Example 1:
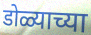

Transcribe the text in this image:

डोळ्याच्या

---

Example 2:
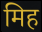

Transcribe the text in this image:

मिह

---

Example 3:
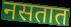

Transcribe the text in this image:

नसतात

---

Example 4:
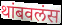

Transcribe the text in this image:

थांबवलंस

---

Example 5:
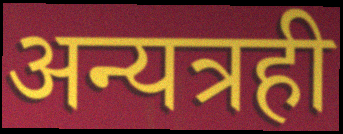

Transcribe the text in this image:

अन्यत्रही